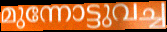
മുന്നോട്ടുവച്ച